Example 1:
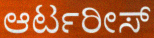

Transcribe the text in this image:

ಆರ್ಟರೀಸ್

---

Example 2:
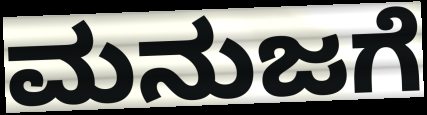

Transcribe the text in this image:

ಮನುಜಗೆ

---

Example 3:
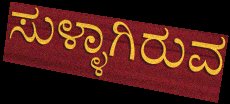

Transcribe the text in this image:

ಸುಳ್ಳಾಗಿರುವ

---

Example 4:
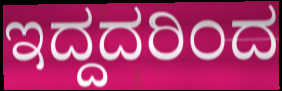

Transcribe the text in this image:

ಇದ್ದದರಿಂದ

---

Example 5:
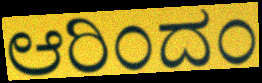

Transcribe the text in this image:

ಆರಿಂದಂ